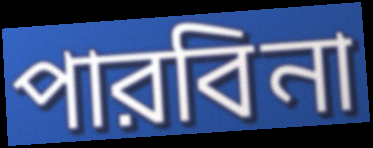
পারবিনা